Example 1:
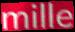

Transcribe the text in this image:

mille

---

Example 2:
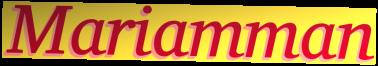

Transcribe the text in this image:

Mariamman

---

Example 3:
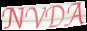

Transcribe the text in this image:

NVDA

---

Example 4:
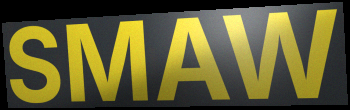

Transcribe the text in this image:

SMAW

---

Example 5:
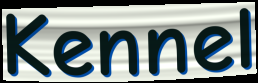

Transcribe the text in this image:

Kennel